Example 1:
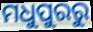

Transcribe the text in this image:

ମଧୁପୁରରୁ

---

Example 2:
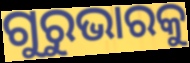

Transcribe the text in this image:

ଗୁରୁଭାରକୁ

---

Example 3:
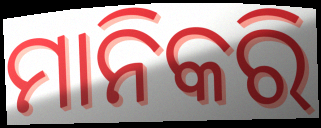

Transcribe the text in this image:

ମାନିକରି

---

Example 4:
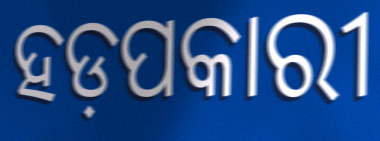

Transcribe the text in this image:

ହଡ଼ପକାରୀ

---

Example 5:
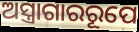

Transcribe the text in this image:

ଅସ୍ତ୍ରାଗାରରୂପେ